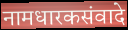
नामधारकसंवादे